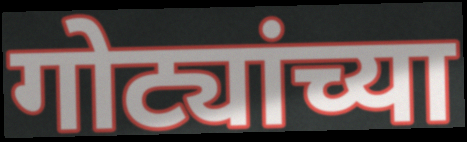
गोट्यांच्या